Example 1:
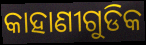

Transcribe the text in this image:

କାହାଣୀଗୁଡିକ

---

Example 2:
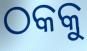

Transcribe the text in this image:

ଠକକୁ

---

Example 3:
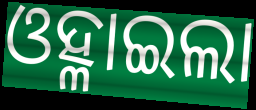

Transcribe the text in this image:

ଓହ୍ଳାଇଲା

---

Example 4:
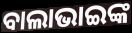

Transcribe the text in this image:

ବାଲାଭାଇଙ୍କ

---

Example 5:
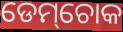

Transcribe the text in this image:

ଡେମ୍‌ଚୋକ